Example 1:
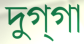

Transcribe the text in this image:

দুগ্‌গা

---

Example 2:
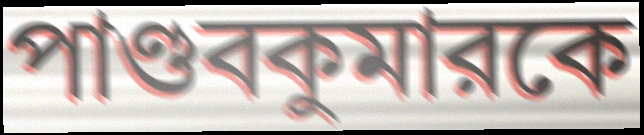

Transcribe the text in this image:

পাণ্ডবকুমারকে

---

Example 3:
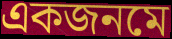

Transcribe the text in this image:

একজনমে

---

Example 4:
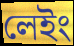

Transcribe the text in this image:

লেইং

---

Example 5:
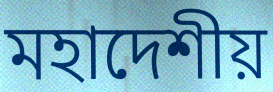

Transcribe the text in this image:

মহাদেশীয়